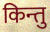
किन्‍तु